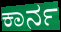
ಕಾರ್ನ